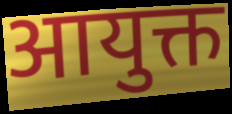
आयुक्त